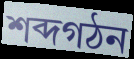
শব্দগঠন